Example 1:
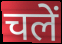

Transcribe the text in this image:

चलें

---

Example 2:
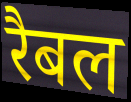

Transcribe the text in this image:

रैबल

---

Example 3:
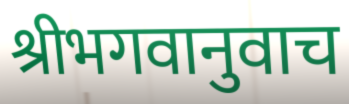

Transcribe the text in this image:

श्रीभगवानुवाच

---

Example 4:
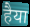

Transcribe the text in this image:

हैया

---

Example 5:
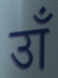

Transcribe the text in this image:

उाँ